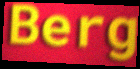
Berg